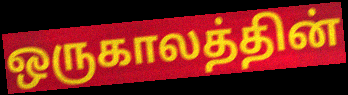
ஒருகாலத்தின்